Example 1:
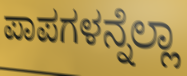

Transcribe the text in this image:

ಪಾಪಗಳನ್ನೆಲ್ಲಾ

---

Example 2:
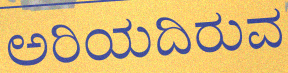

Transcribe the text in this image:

ಅರಿಯದಿರುವ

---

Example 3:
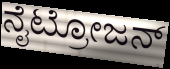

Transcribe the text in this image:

ನೈಟ್ರೋಜನ್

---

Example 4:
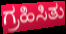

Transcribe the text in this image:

ಗ್ರಹಿಸಿತು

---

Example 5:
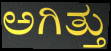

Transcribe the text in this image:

ಅಗಿತ್ತು